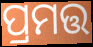
ପ୍ରମତ୍ତ